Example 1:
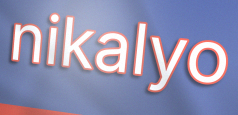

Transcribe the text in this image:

nikalyo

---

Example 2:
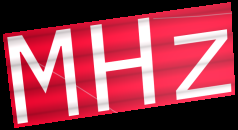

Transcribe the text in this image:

MHz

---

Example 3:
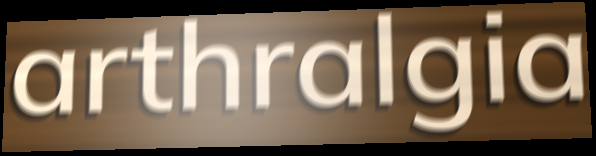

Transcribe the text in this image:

arthralgia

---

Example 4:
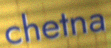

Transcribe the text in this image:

chetna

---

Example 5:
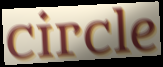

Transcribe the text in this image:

circle